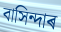
বাসিন্দাৰ